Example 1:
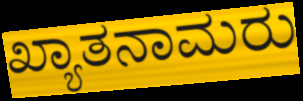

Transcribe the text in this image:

ಖ್ಯಾತನಾಮರು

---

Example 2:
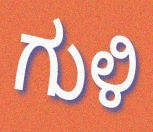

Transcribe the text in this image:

ಗುಳಿ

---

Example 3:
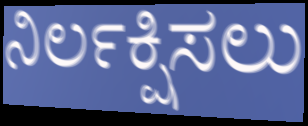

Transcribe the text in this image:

ನಿರ್ಲಕ್ಷಿಸಲು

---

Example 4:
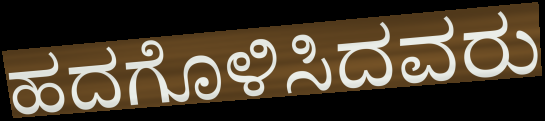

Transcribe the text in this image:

ಹದಗೊಳಿಸಿದವರು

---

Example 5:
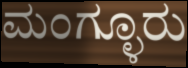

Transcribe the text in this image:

ಮಂಗ್ಳೂರು